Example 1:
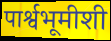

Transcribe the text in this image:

पार्श्वभूमीशी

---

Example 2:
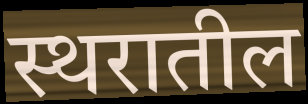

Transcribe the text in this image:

स्थरातील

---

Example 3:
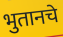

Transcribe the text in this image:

भुतानचे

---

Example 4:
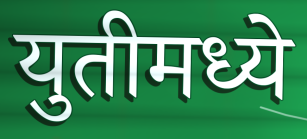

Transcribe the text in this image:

युतीमध्ये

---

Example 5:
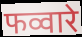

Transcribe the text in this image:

फव्वारे